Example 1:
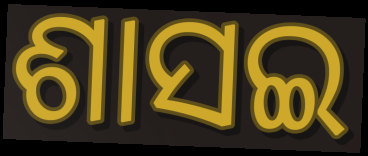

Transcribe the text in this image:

ଶାସଇ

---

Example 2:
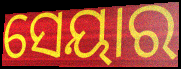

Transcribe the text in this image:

ସେୟାର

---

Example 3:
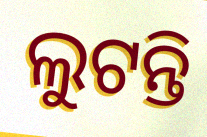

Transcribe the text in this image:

ଲୁଟନ୍ତି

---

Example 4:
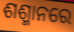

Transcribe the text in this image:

ଶଶ୍ମାନରେ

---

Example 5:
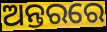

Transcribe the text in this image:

ଅନ୍ତରରେ